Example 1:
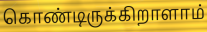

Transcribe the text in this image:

கொண்டிருக்கிறாளாம்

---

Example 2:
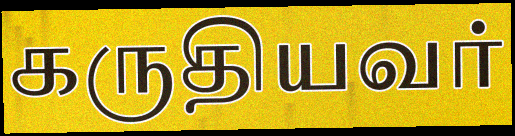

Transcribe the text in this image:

கருதியவர்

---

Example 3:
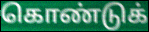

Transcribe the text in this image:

கொண்டுக்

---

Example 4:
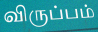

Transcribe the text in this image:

விருப்பம்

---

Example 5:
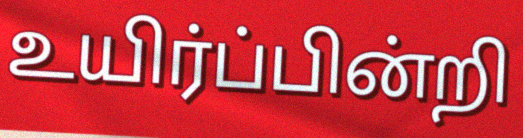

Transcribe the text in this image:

உயிர்ப்பின்றி